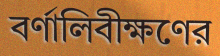
বর্ণালিবীক্ষণের